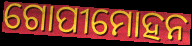
ଗୋପୀମୋହନ